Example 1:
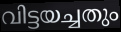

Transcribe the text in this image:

വിട്ടയച്ചതും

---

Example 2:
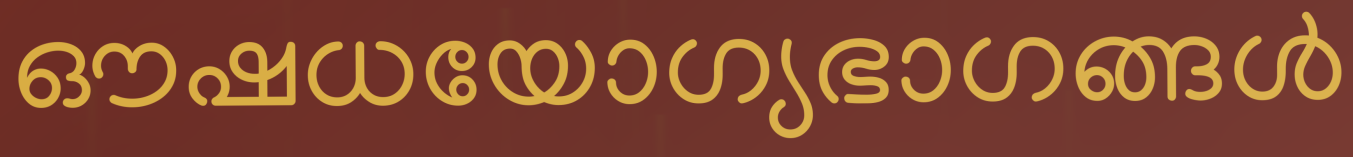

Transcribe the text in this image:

ഔഷധയോഗ്യഭാഗങ്ങൾ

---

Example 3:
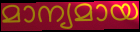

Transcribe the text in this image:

മാന്യമായ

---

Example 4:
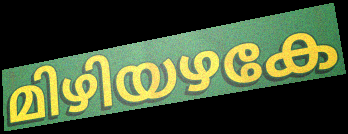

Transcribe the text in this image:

മിഴിയഴകേ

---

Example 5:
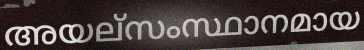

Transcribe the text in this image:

അയല്സംസ്ഥാനമായ